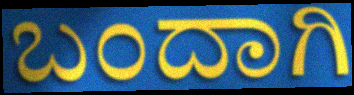
ಬಂದಾಗಿ